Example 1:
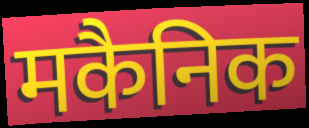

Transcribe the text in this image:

मकैनिक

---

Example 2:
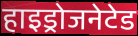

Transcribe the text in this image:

हाइड्रोजनेटेड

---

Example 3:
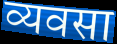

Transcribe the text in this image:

व्यवसा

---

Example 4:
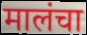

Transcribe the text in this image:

मालंचा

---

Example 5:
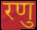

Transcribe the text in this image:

रणु